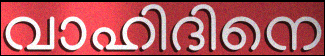
വാഹിദിനെ